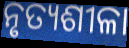
ନୃତ୍ୟଶୀଳା